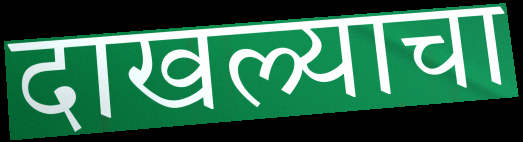
दाखल्याचा